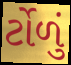
ર્ટોળું